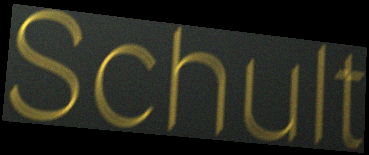
Schult